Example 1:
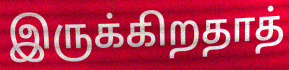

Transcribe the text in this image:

இருக்கிறதாத்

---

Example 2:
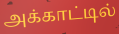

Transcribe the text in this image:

அக்காட்டில்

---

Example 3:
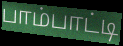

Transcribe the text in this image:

பாம்பாட்டி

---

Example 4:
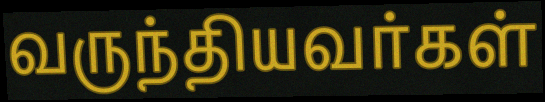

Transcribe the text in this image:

வருந்தியவர்கள்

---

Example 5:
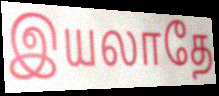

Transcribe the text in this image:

இயலாதே